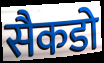
सैकडो